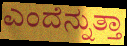
ಎಂದೆನ್ನುತ್ತಾ